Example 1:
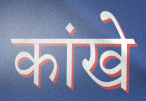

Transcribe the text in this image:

कांखे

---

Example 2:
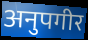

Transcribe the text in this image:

अनुपगीर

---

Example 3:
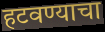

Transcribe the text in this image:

हटवण्याचा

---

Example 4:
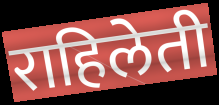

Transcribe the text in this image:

राहिलेती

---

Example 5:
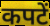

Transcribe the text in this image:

कपटें